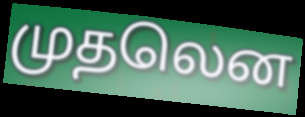
முதலென